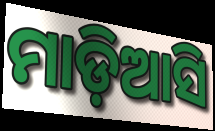
ମାଡ଼ିଆସି